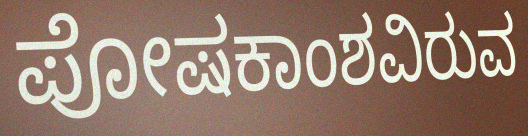
ಪೋಷಕಾಂಶವಿರುವ